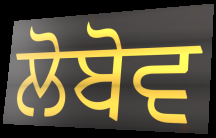
ਲੋਬੋਵ